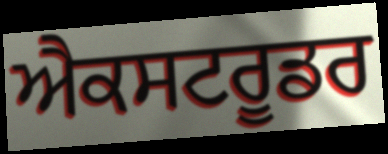
ਐਕਸਟਰੂਡਰ